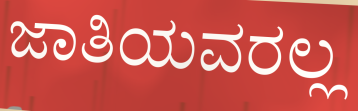
ಜಾತಿಯವರಲ್ಲ